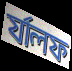
র্যালফ